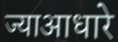
ज्याआधारे